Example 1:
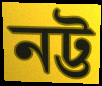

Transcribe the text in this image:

নট্ট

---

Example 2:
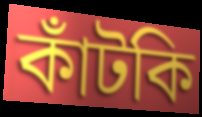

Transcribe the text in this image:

কাঁটকি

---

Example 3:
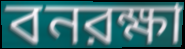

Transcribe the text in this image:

বনরক্ষা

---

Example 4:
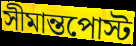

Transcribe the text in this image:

সীমান্তপোস্ট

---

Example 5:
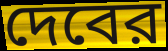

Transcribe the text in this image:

দেবের